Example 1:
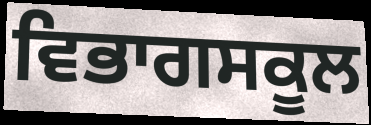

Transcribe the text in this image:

ਵਿਭਾਗਸਕੂਲ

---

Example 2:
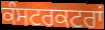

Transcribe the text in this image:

ਕੰਸਟਰਕਟਰਾਂ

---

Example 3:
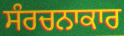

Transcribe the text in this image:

ਸੰਰਚਨਾਕਾਰ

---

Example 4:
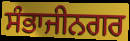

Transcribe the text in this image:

ਸੰਭਾਜੀਨਗਰ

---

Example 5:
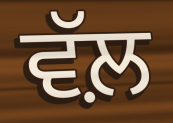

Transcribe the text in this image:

ਵੱਲ਼